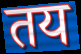
तय